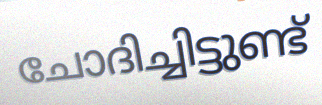
ചോദിച്ചിട്ടുണ്ട്